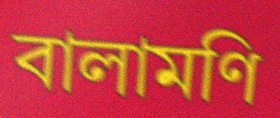
বালামণি